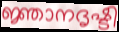
ജ്ഞാനദൃഷ്ടി